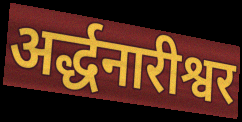
अर्द्धनारीश्वर